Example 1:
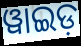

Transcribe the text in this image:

ୱାଇଡ଼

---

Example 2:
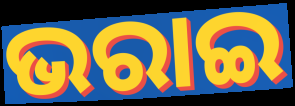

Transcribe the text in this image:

ଭରାଇ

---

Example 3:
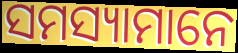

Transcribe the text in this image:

ସମସ୍ୟାମାନେ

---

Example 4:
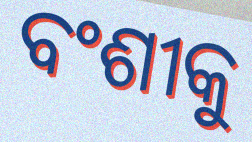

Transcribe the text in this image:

ବଂଶୀକୁ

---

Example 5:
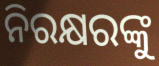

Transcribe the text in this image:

ନିରକ୍ଷରଙ୍କୁ